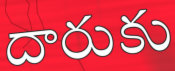
దారుకు